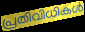
പ്രതിവിധികൾ